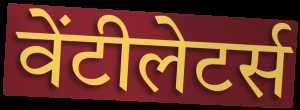
वेंटीलेटर्स